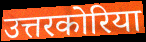
उत्तरकोरिया